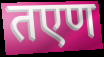
तएण